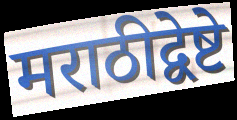
मराठीद्वेष्टे